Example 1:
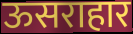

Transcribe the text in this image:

ऊसराहार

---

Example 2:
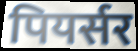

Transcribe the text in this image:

पियर्सर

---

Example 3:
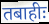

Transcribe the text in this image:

तबाहीः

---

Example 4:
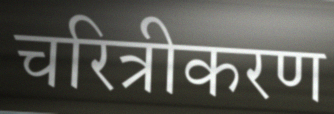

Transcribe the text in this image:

चरित्रीकरण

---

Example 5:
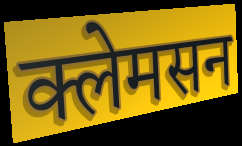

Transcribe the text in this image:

क्लेमसन